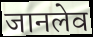
जानलेव